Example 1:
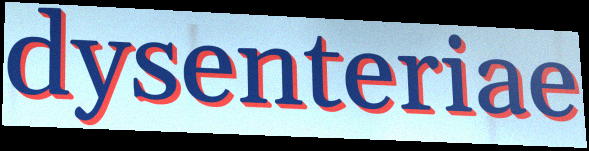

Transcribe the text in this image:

dysenteriae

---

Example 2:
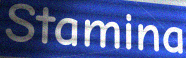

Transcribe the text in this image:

Stamina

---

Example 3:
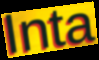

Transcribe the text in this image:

Inta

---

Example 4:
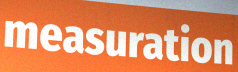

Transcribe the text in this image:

measuration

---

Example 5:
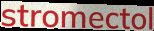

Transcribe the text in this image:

stromectol